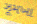
ઝૂમખા